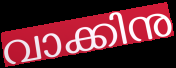
വാക്കിനു